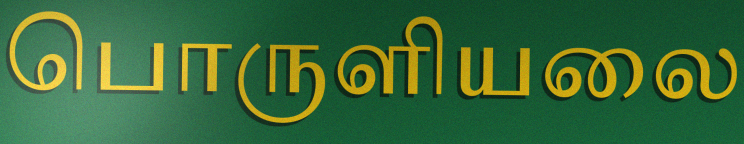
பொருளியலை